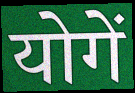
योगें